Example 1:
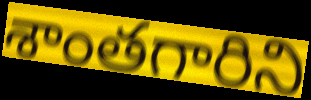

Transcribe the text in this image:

శాంతగారిని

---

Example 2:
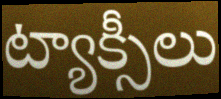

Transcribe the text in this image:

ట్యాక్సీలు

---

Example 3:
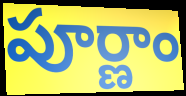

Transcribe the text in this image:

పూర్ణాం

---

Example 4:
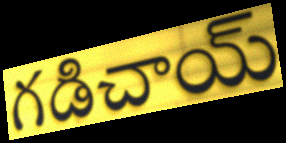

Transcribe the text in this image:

గడిచాయ్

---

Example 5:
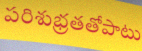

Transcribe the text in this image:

పరిశుభ్రతతోపాటు